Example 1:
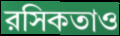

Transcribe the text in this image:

রসিকতাও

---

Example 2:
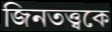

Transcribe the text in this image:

জিনতত্ত্বকে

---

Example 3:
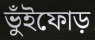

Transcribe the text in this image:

ভুঁইফোড়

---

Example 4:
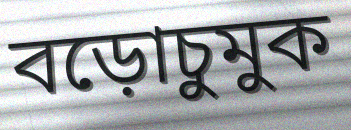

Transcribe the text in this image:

বড়োচুমুক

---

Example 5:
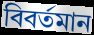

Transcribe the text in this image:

বিবর্তমান